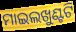
ମାଇଲଖୁଣ୍ଟଟି